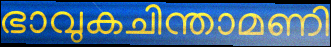
ഭാവുകചിന്താമണി